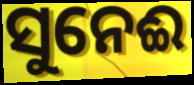
ସୁନେଈ